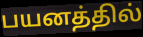
பயனத்தில்